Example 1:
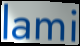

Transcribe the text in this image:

lami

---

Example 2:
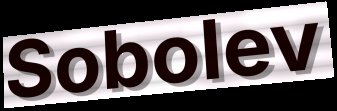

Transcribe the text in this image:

Sobolev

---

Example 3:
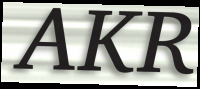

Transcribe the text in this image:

AKR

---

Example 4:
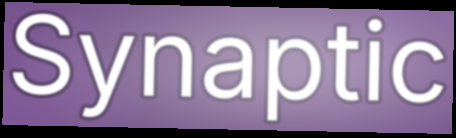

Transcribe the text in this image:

Synaptic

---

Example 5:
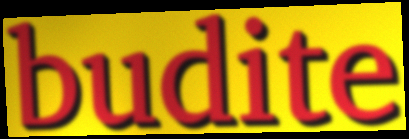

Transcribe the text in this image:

budite